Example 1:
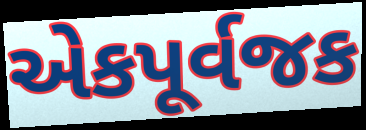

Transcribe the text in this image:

એકપૂર્વજક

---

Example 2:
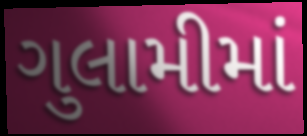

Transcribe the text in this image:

ગુલામીમાં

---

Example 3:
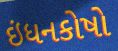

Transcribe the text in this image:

ઇંધનકોષો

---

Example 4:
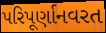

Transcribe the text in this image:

પરિપૂર્ણાનવરત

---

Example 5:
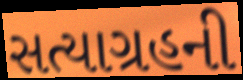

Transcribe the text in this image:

સત્યાગ્રહની